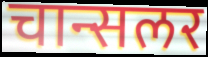
चान्सलर